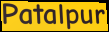
Patalpur